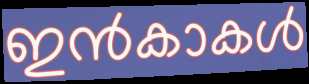
ഇൻകാകൾ